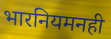
भारनियमनही